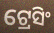
ଟ୍ରେସିଂ